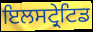
ਇਲਸਟ੍ਰੇਟਿਡ